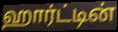
ஹார்ட்டின்